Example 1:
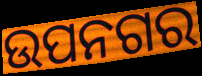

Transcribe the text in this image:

ଉପନଗର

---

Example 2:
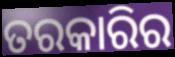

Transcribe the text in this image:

ତରକାରିର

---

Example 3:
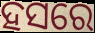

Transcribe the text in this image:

ହସରେ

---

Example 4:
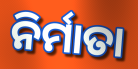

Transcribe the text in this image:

ନିର୍ମାତା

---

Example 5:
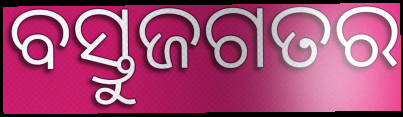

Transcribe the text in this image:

ବସ୍ତୁଜଗତର